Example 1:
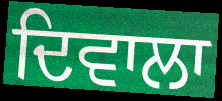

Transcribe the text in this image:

ਦਿਵਾਲਾ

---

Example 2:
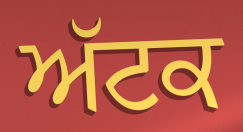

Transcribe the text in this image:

ਅੱਟਕ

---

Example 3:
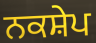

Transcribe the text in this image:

ਨਕਸ਼ੇਪ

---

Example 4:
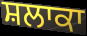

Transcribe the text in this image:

ਸ਼ਲਾਕਾ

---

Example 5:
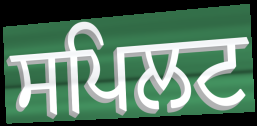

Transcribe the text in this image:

ਸਪਿਲਟ